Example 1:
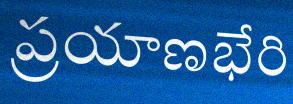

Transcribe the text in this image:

ప్రయాణభేరి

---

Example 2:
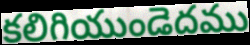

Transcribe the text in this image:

కలిగియుండెదము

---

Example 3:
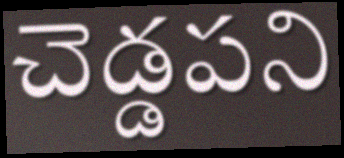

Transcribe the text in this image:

చెడ్డపని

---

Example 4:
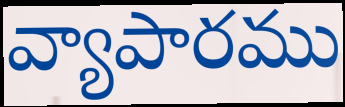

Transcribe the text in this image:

వ్యాపారము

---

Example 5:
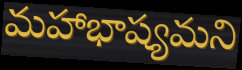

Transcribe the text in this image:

మహాభాష్యమని